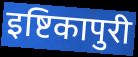
इष्टिकापुरी